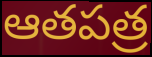
ఆతపత్ర